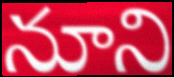
నూని